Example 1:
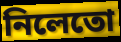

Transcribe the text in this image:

নিলেতো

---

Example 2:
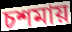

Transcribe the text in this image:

চশমায়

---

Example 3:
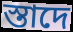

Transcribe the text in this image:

স্তাদে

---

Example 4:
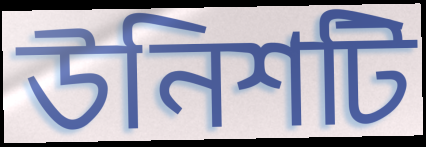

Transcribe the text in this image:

উনিশটি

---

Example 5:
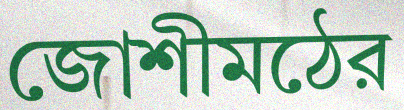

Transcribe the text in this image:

জোশীমঠের